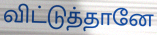
விட்டுத்தானே